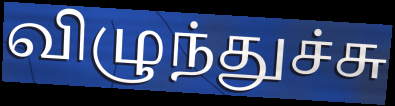
விழுந்துச்சு